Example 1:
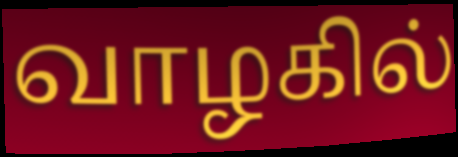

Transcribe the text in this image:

வாழகில்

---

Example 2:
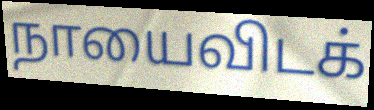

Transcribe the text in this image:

நாயைவிடக்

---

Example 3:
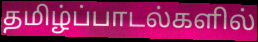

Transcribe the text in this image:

தமிழ்ப்பாடல்களில்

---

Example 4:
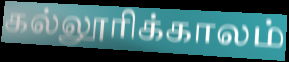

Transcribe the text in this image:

கல்லூரிக்காலம்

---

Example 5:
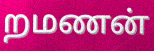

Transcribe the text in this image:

றமணன்